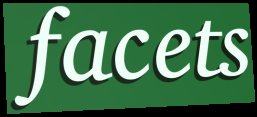
facets